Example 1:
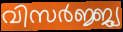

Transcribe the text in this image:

വിസർജ്ജ്യ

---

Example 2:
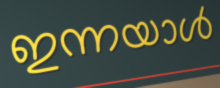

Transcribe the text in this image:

ഇന്നയാൾ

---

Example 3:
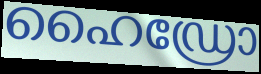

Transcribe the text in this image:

ഹൈഡ്രോ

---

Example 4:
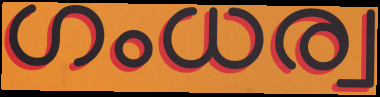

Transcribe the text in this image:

ഗംധര്വ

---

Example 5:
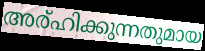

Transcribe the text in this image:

അര്ഹിക്കുന്നതുമായ